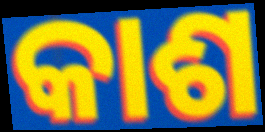
କାଶ